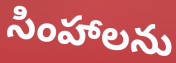
సింహాలను